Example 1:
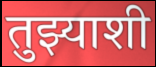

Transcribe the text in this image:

तुझ्याशी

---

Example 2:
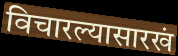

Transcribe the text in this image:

विचारल्यासारखं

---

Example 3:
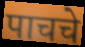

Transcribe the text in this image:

पाचचे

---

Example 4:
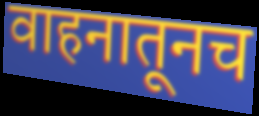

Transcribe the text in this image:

वाहनातूनच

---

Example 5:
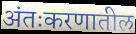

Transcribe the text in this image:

अंतःकरणातील